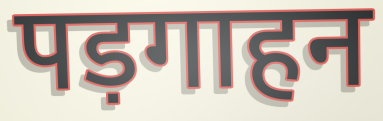
पड़गाहन